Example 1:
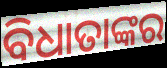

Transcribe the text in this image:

ବିଧାତାଙ୍କର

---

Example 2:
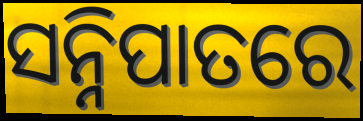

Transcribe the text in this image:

ସନ୍ନିପାତରେ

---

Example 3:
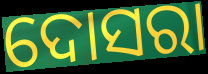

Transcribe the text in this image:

ଦୋସରା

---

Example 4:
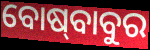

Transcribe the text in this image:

ବୋଷ୍‍ବାବୁର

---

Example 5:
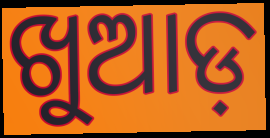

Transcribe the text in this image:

ଖୁଆଡ଼